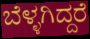
ಬೆಳ್ಳಗಿದ್ದರೆ